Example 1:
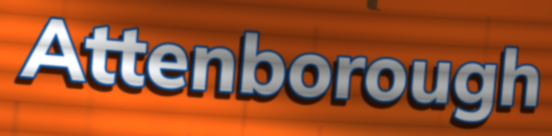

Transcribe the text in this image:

Attenborough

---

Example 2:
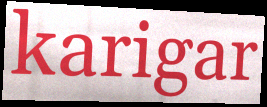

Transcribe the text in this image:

karigar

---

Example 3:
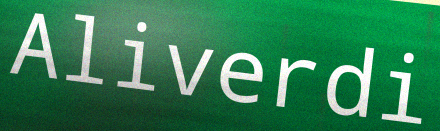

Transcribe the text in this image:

Aliverdi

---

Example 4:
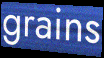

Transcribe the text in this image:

grains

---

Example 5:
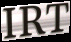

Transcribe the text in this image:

IRT